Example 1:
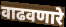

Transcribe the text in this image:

वाढवणारे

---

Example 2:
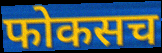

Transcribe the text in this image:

फोकसच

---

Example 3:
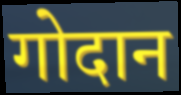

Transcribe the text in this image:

गोदान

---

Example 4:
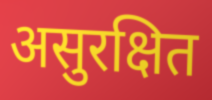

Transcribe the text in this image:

असुरक्षित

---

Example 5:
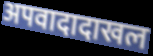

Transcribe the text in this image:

अपवादादाखल